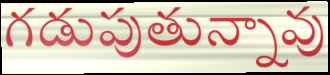
గడుపుతున్నావు